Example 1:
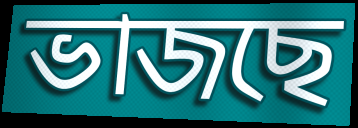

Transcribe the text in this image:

ভাজছে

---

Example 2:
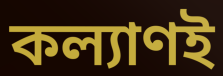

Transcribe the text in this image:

কল্যাণই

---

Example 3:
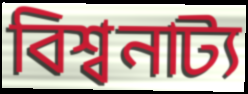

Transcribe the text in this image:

বিশ্বনাট্য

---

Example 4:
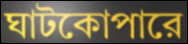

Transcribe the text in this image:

ঘাটকোপারে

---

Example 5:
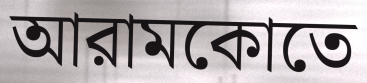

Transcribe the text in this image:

আরামকোতে